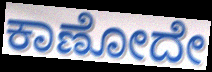
ಕಾಣೋದೇ